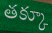
తక్కూ